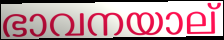
ഭാവനയാല്